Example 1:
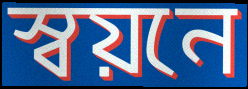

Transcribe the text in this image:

স্বয়নে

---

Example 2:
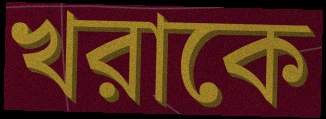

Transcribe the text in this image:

খরাকে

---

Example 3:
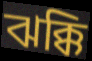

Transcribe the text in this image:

ঝক্কি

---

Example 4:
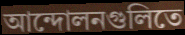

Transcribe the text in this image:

আন্দোলনগুলিতে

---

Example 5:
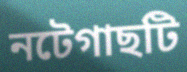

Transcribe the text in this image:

নটেগাছটি